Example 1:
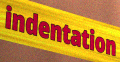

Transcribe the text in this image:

indentation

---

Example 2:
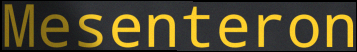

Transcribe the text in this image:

Mesenteron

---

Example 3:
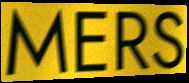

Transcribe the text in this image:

MERS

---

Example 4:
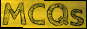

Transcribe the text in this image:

MCQs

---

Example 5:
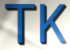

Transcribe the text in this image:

TK